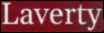
Laverty